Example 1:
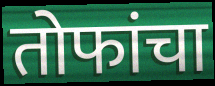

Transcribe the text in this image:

तोफांचा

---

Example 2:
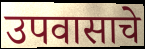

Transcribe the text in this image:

उपवासाचे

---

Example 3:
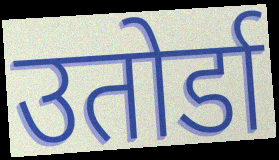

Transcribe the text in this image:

उतोर्डा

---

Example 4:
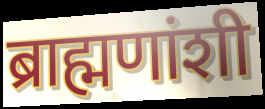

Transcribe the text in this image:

ब्राह्मणांशी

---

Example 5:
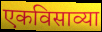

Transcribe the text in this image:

एकविसाव्या